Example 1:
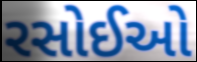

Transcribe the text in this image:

રસોઈઓ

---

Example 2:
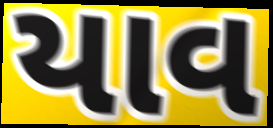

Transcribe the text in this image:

યાવ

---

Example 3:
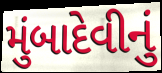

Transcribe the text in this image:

મુંબાદેવીનું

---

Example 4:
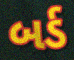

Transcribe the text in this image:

બર્ડ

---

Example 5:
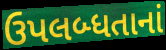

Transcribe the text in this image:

ઉપલબ્ધતાનાં